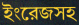
ইংরেজসহ